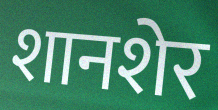
शानशेर